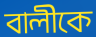
বালীকে